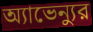
অ্যাভেন্যুর